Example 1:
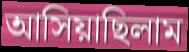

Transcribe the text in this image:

আসিয়াছিলাম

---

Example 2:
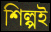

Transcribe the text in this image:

শিল্পই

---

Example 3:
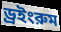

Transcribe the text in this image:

ড্রইংরুম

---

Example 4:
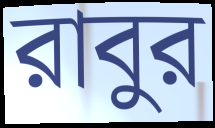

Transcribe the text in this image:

রাবুর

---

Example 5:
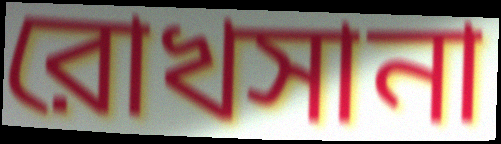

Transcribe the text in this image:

রোখসানা